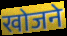
खोजने